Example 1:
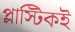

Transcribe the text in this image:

প্লাস্টিকই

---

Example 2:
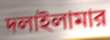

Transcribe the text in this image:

দলাইলামার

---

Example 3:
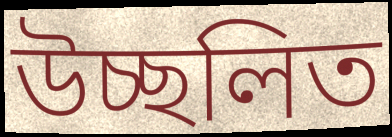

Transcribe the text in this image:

উচ্ছলিত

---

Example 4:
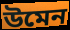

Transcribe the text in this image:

উমেন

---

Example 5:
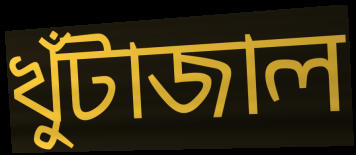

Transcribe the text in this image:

খুঁটাজাল